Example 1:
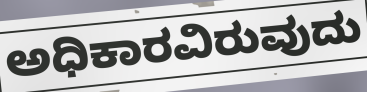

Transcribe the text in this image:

ಅಧಿಕಾರವಿರುವುದು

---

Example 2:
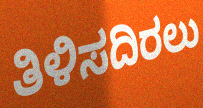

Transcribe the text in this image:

ತಿಳಿಸದಿರಲು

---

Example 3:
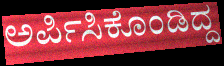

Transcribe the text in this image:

ಅರ್ಪಿಸಿಕೊಂಡಿದ್ದ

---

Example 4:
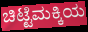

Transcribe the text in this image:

ಚಿಟ್ಟೆಮಕ್ಕಿಯ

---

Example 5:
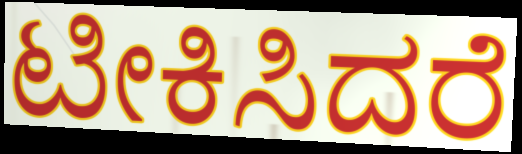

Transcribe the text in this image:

ಟೀಕಿಸಿದರೆ